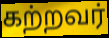
கற்றவர்